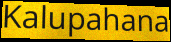
Kalupahana